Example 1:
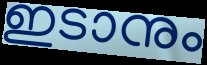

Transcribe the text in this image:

ഇടാനും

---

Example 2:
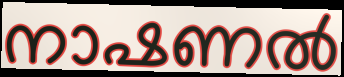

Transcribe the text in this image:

നാഷണൽ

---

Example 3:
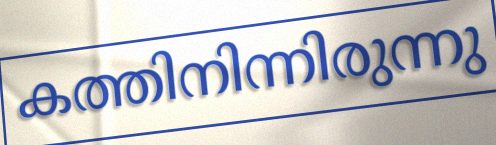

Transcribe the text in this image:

കത്തിനിന്നിരുന്നു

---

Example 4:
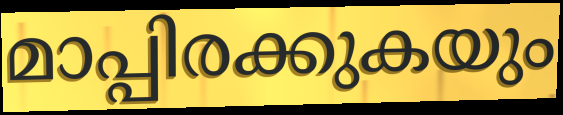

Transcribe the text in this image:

മാപ്പിരക്കുകയും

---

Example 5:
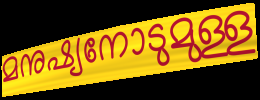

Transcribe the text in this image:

മനുഷ്യനോടുമുള്ള